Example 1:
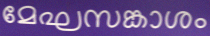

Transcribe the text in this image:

മേഘസങ്കാശം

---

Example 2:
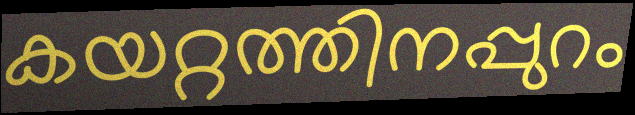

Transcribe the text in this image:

കയറ്റത്തിനപ്പുറം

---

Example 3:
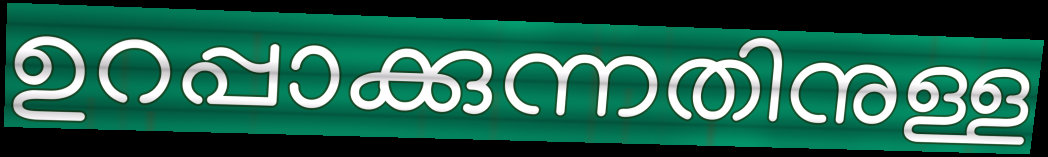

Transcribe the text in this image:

ഉറപ്പാക്കുന്നതിനുള്ള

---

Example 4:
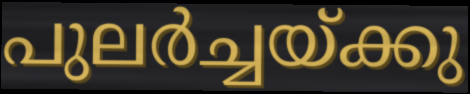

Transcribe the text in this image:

പുലർച്ചയ്ക്കു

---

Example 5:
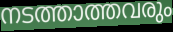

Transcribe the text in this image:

നടത്താത്തവരും